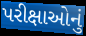
પરીક્ષાઓનું